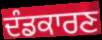
ਦੰਡਕਾਰਣ